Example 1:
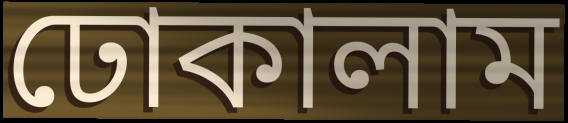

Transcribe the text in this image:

ঢোকালাম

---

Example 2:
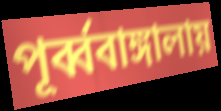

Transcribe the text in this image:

পূর্ব্ববাঙ্গালায়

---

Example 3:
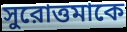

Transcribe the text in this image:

সুরোত্তমাকে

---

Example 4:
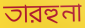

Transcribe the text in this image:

তারহুনা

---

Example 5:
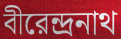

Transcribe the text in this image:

বীরেন্দ্রনাথ